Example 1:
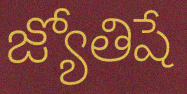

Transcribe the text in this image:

జ్యోతిషే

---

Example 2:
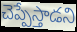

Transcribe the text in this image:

చెప్పేస్తాడని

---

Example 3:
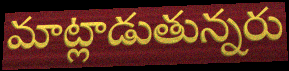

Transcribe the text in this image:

మాట్లాడుతున్నరు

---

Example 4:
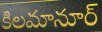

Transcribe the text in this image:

కిలమానూర్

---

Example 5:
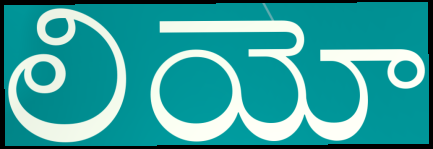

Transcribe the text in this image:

లియో